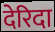
देरिदा